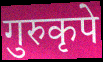
गुरुकृपे